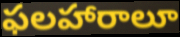
ఫలహారాలూ